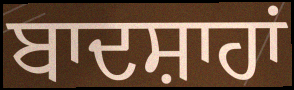
ਬਾਦਸ਼ਾਹਾਂ